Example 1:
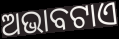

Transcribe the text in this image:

ଅଭାବଟାଏ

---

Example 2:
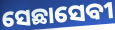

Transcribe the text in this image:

ସେଛାସେବୀ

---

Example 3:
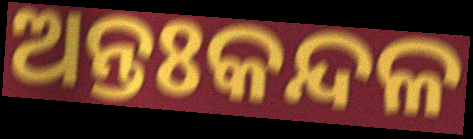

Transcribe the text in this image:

ଅନ୍ତଃକନ୍ଦଳ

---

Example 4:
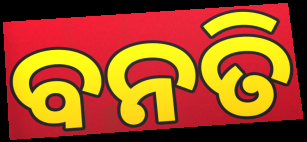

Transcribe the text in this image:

ବନତି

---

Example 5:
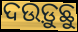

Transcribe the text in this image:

ଦଉଡ଼ୁଛୁ